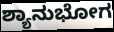
ಶ್ಯಾನುಭೋಗ